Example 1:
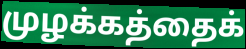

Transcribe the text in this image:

முழக்கத்தைக்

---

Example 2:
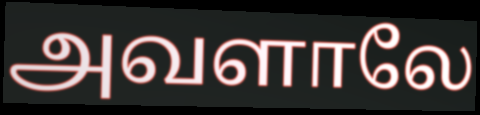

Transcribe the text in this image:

அவளாலே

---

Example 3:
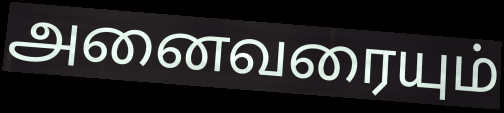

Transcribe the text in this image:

அனைவரையும்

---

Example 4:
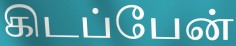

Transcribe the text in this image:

கிடப்பேன்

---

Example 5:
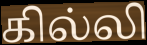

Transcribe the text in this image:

கில்லி